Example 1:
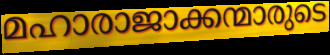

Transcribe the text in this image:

മഹാരാജാക്കന്മാരുടെ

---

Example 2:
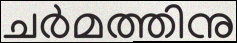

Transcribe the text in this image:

ചർമത്തിനു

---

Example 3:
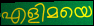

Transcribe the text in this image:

എളിമയെ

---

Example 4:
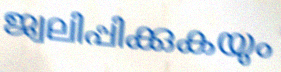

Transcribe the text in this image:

ജ്വലിപ്പിക്കുകയും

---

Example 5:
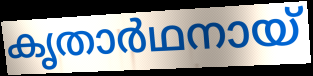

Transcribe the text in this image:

കൃതാർഥനായ്